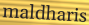
maldharis